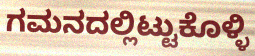
ಗಮನದಲ್ಲಿಟ್ಟುಕೊಳ್ಳಿ